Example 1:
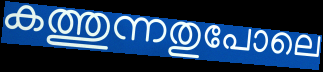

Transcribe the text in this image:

കത്തുന്നതുപോലെ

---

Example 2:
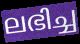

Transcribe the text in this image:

ലഭിച്ച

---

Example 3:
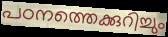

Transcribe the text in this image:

പഠനത്തെക്കുറിച്ചും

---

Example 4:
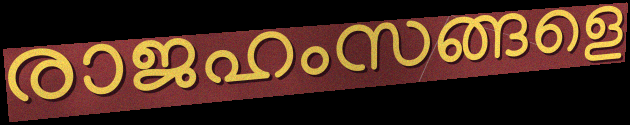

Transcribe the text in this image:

രാജഹംസങ്ങളെ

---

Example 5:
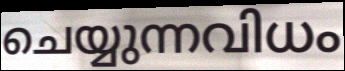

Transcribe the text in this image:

ചെയ്യുന്നവിധം